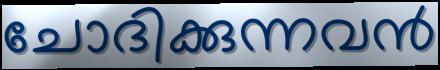
ചോദിക്കുന്നവൻ